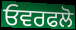
ਓਵਰਫਲੋ